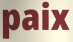
paix